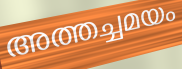
അത്തച്ചമയം